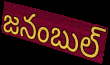
జనంబుల్